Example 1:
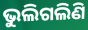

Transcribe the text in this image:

ଭୁଲିଗଲିଣି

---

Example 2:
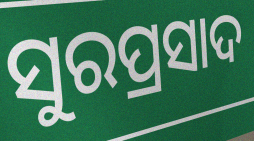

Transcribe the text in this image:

ସୁରପ୍ରସାଦ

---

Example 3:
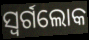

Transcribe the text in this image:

ସ୍ୱର୍ଗଲୋକ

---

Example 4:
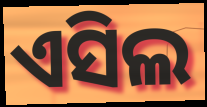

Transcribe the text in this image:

ଏସିଲ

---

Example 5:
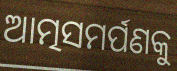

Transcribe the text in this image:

ଆତ୍ମସମର୍ପଣକୁ